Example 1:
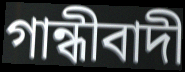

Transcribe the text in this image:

গান্ধীবাদী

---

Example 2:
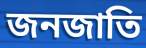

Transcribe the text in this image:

জনজাতি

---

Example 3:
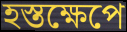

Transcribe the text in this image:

হস্তক্ষেপে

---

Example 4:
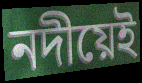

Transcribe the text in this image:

নদীয়েই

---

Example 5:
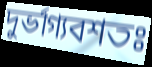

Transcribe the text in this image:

দুৰ্ভাগ্যবশতঃ